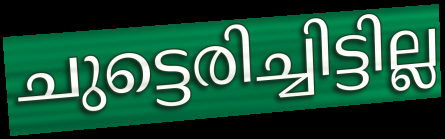
ചുട്ടെരിച്ചിട്ടില്ല